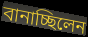
বানাচ্ছিলেন